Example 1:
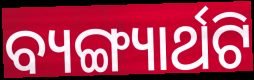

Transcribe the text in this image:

ବ୍ୟଙ୍ଗ୍ୟାର୍ଥଟି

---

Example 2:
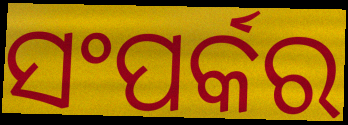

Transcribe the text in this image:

ସଂପର୍କର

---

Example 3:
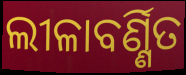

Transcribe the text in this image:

ଲୀଳାବର୍ଣ୍ଣିତ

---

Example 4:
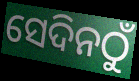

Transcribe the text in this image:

ସେଦିନଠୁଁ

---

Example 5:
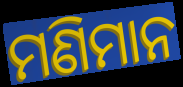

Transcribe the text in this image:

ମଣିମାନ